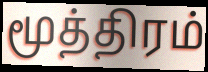
மூத்திரம்